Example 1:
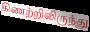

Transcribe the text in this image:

கிணற்றிலிருந்து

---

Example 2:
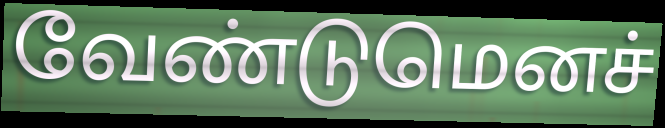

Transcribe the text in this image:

வேண்டுமெனச்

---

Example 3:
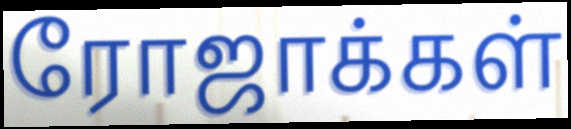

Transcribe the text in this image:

ரோஜாக்கள்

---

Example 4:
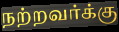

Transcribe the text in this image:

நற்றவர்க்கு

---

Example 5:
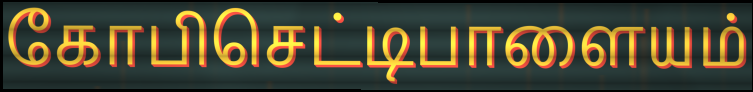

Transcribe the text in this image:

கோபிசெட்டிபாளையம்